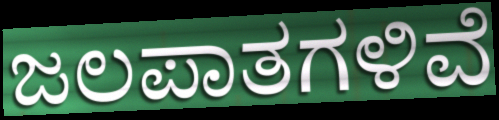
ಜಲಪಾತಗಳಿವೆ